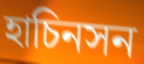
হাচিনসন